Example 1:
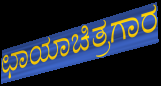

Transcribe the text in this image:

ಛಾಯಾಚಿತ್ರಗಾರ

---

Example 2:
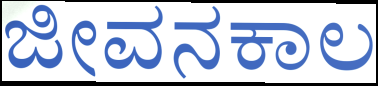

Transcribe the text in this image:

ಜೀವನಕಾಲ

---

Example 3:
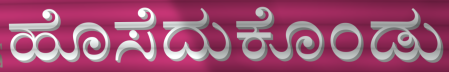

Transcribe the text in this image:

ಹೊಸೆದುಕೊಂಡು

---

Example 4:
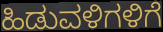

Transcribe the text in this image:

ಹಿಡುವಳಿಗಳಿಗೆ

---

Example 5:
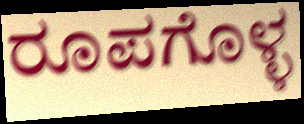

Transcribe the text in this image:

ರೂಪಗೊಳ್ಳ